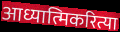
आध्यात्मिकरित्या